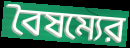
বৈষম্যের